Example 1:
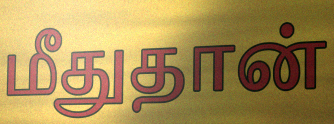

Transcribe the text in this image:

மீதுதான்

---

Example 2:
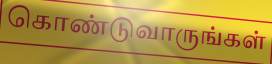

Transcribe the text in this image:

கொண்டுவாருங்கள்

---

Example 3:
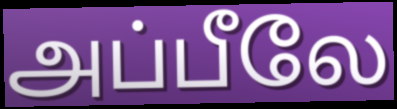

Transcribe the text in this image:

அப்பீலே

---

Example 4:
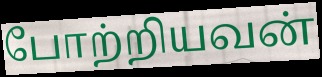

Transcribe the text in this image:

போற்றியவன்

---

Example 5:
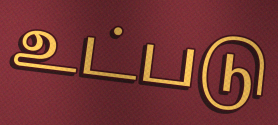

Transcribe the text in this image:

உட்படு